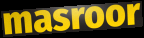
masroor